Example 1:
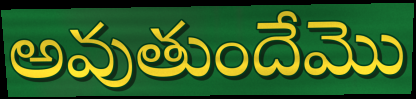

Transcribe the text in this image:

అవుతుందేమొ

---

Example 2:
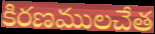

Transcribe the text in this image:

కిరణములచేత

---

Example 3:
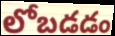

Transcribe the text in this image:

లోబడడం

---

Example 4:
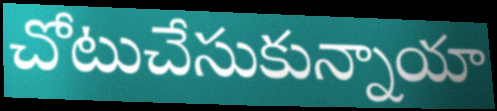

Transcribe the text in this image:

చోటుచేసుకున్నాయా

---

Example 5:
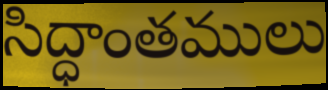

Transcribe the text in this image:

సిద్ధాంతములు